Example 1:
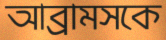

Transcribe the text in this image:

আব্রামসকে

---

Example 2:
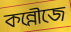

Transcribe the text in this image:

কন্নৌজে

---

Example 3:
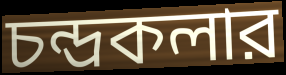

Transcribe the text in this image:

চন্দ্রকলার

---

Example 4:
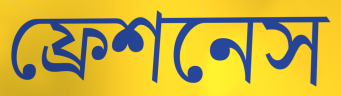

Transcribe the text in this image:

ফ্রেশনেস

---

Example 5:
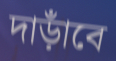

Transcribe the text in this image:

দাড়াঁবে